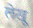
लेखू